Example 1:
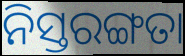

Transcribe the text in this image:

ନିସ୍ତରଙ୍ଗତା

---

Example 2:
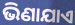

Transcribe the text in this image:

ଭିଣାଯାଏ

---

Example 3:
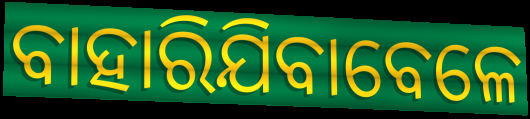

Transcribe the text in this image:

ବାହାରିଯିବାବେଳେ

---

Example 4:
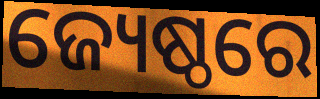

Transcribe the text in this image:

ଜ୍ୟେଷ୍ଠରେ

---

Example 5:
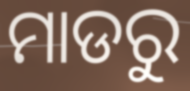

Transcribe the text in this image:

ମାଡରୁ